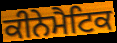
ਕੀਨੇਮੈਟਿਕ